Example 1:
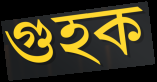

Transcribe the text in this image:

গুহক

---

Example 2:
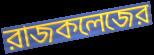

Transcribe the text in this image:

রাজকলেজের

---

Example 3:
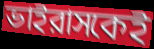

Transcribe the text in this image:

ভাইরাসকেই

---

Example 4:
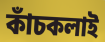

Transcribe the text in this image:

কাঁচকলাই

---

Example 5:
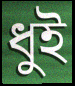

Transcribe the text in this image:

ধুই